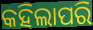
କହିଲାପରି